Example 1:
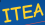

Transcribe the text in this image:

ITEA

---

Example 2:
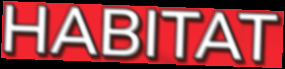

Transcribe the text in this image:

HABITAT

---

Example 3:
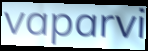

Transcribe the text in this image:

vaparvi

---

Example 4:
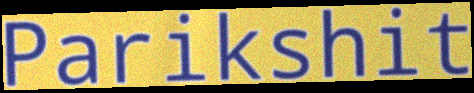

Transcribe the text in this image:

Parikshit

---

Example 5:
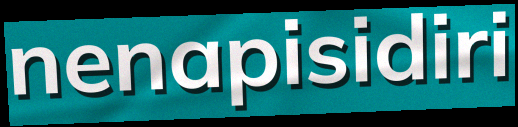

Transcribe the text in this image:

nenapisidiri